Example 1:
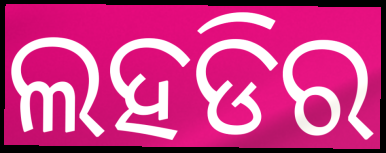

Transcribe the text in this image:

ଲହଡିର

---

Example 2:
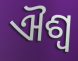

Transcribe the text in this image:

ଐଶ୍ୱ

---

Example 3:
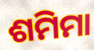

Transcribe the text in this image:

ଶମିମା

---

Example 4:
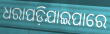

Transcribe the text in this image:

ଧରାପଡ଼ିଯାଇପାରେ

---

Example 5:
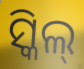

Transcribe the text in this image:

ସ୍କିଲ୍